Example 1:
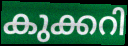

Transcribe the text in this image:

കുക്കറി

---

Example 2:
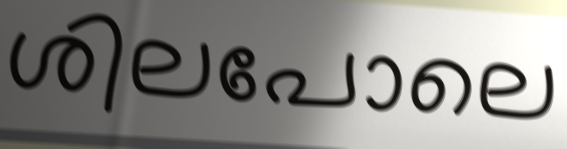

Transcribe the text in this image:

ശിലപോലെ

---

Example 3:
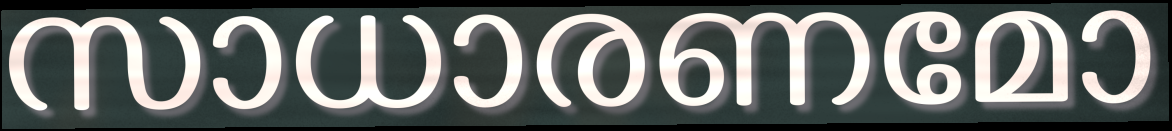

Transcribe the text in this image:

സാധാരണമോ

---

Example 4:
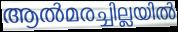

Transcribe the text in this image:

ആൽമരച്ചില്ലയിൽ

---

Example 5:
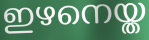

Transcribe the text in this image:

ഇഴനെയ്ത